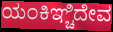
ಯಂಕಿಞ್ಚಿದೇವ